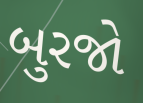
બુરજો